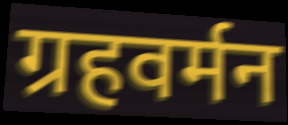
ग्रहवर्मन